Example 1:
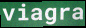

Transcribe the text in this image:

viagra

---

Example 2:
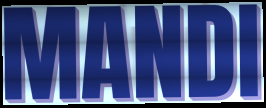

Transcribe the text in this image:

MANDI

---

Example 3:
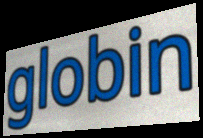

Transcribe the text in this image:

globin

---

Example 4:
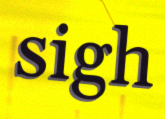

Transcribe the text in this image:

sigh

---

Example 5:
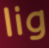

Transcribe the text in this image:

lig